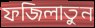
ফজিলাতুন